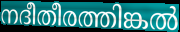
നദീതീരത്തിങ്കൽ